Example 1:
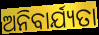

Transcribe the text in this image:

ଅନିବାର୍ଯ୍ୟତା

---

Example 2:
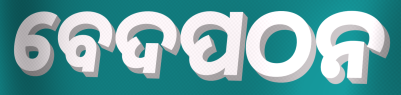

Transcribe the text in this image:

ବେଦପଠନ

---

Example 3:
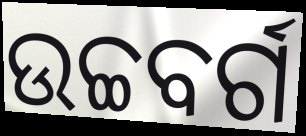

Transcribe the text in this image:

ଉଚ୍ଚବର୍ଗ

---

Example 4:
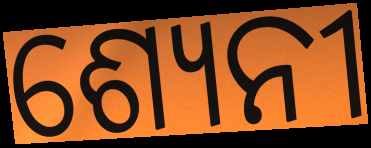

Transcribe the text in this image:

ଶ୍ୟେନୀ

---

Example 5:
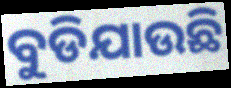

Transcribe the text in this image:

ବୁଡିଯାଉଛି